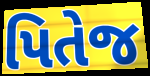
પિતેજ